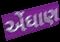
એંઘાણ